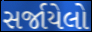
સર્જાયેલો